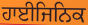
ਹਾਈਜਿਨਿਕ